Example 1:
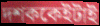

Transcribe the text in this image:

দশককেইটাই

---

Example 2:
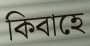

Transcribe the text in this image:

কিবাহে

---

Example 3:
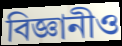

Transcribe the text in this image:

বিজ্ঞানীও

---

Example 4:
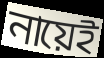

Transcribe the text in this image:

নায়েই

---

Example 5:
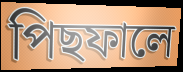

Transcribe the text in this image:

পিছফালে